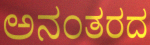
ಅನಂತರದ